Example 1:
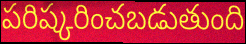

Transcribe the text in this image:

పరిష్కరించబడుతుంది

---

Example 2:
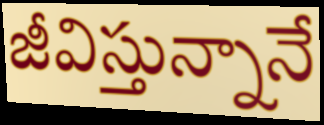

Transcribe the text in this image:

జీవిస్తున్నానే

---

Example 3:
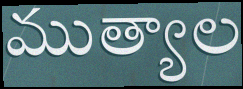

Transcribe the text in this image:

ముత్యాల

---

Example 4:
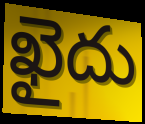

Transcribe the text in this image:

ఖైదు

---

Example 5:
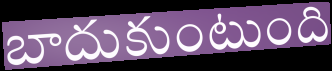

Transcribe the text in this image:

బాదుకుంటుంది